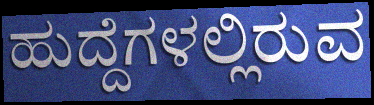
ಹುದ್ದೆಗಳಲ್ಲಿರುವ